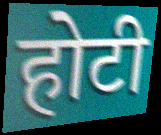
होटी